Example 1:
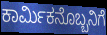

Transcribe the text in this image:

ಕಾರ್ಮಿಕನೊಬ್ಬನಿಗೆ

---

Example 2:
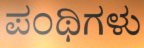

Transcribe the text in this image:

ಪಂಥಿಗಳು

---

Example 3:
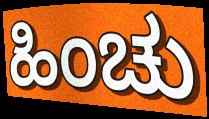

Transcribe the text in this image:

ಹಿಂಚು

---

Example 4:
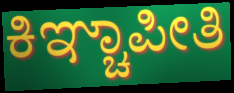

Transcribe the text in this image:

ಕಿಞ್ಚಾಪೀತಿ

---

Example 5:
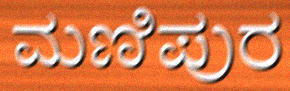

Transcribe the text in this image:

ಮಣಿಪುರ